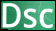
Dsc